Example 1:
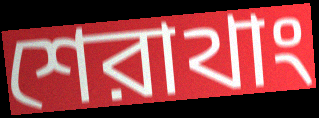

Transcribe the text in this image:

শেরাথাং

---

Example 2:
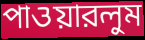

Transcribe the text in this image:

পাওয়ারলুম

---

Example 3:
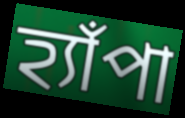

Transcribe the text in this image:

হ্যাঁপা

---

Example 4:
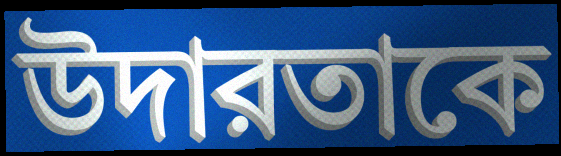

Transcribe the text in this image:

উদারতাকে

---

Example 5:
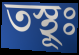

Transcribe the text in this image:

তস্থূঃ